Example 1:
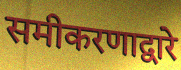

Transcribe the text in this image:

समीकरणाद्वारे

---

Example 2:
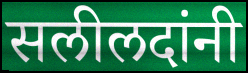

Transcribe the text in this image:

सलीलदांनी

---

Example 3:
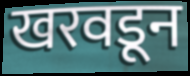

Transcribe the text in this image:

खरवडून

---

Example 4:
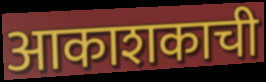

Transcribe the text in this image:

आकाशकाची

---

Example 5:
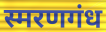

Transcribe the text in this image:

स्मरणगंध